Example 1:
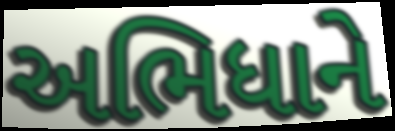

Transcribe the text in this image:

અભિધાને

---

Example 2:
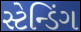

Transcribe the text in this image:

સ્ટેન્ડિંગ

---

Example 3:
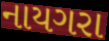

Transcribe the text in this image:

નાયગરા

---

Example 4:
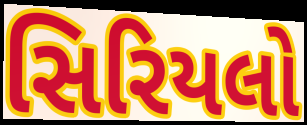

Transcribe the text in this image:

સિરિયલો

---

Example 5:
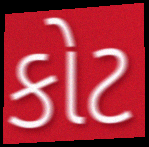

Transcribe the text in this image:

કોટ